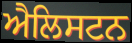
ਐਲਿਸਟਨ